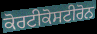
ਕੋਰਟੀਕੋਸਟੀਰੋਨ